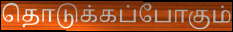
தொடுக்கப்போகும்